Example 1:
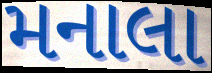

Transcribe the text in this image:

મનાલા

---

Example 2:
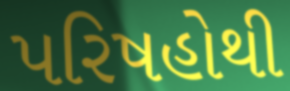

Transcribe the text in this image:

પરિષહોથી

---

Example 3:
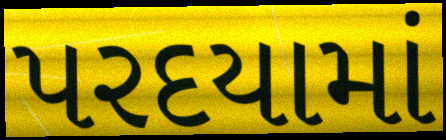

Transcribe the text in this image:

પરદયામાં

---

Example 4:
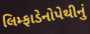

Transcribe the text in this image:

લિમ્ફાડેનોપેથીનું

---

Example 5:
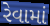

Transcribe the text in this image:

રેવામાં